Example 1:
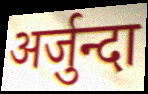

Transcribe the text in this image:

अर्जुन्दा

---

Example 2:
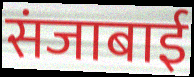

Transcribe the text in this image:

संजाबाई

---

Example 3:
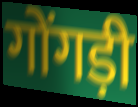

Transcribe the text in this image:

गोंगड़ी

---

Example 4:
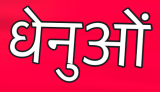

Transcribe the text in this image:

धेनुओं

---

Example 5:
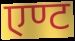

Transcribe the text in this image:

एण्ट